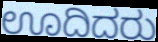
ಊದಿದರು